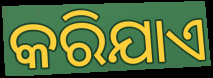
କରିଯାଏ